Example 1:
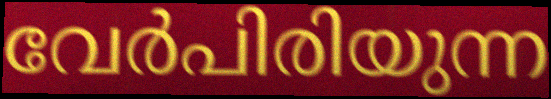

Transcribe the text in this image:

വേർപിരിയുന്ന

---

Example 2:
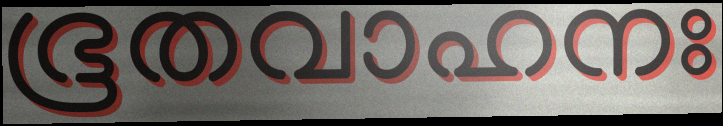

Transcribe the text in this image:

ഭൂതവാഹനഃ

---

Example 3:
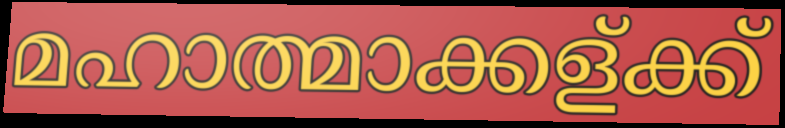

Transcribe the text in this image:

മഹാത്മാക്കള്ക്ക്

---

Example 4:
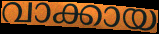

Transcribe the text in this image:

വാക്കായ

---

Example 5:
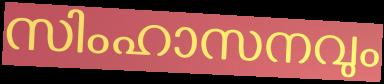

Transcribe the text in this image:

സിംഹാസനവും